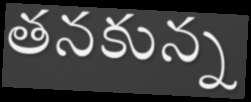
తనకున్న